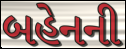
બહેનની